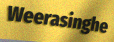
Weerasinghe